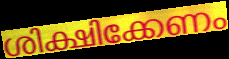
ശിക്ഷിക്കേണം